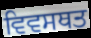
ਵਿਵਸਥਤ